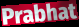
Prabhat